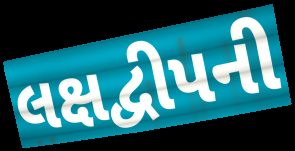
લક્ષદ્વીપની